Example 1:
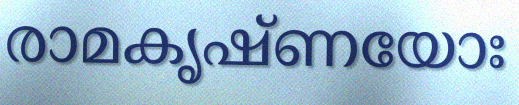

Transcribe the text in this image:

രാമകൃഷ്ണയോഃ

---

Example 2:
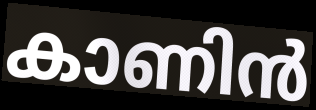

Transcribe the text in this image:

കാണിൻ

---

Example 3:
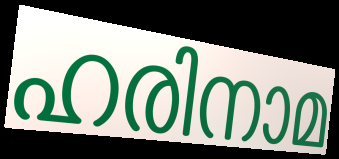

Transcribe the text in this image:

ഹരിനാമ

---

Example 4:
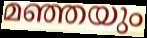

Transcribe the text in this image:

മഞ്ഞയും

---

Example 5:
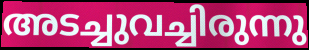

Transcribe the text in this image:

അടച്ചുവച്ചിരുന്നു